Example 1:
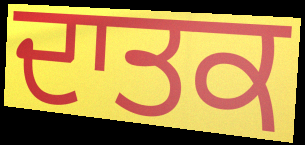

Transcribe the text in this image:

ਦਾਤਕ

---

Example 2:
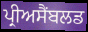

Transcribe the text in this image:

ਪ੍ਰੀਅਸੈਂਬਲਡ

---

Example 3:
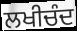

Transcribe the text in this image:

ਲਖੀਚੰਦ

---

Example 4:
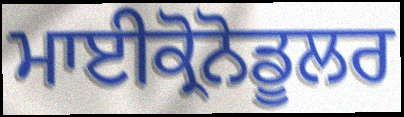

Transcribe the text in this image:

ਮਾਈਕ੍ਰੋਨੋਡੂਲਰ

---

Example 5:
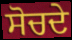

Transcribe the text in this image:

ਸੋਚਦੇ